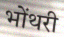
भोंथरी